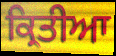
ਕ੍ਰਿਤੀਆ